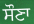
ਸੌਣਾ